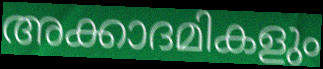
അക്കാദമികളും